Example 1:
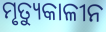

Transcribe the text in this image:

ମୃତ୍ୟୁକାଳୀନ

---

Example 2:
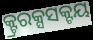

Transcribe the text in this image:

କ୍ଟ୍ରରକ୍ସସକ୍ଟୟ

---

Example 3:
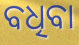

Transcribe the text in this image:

ବଧିବା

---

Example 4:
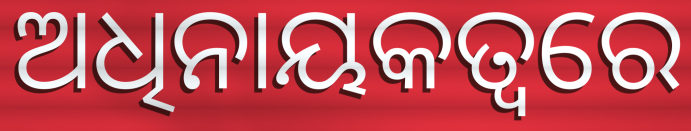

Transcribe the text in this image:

ଅଧିନାୟକତ୍ବରେ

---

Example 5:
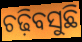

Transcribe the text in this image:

ଚଢ଼ିବସୁଛି